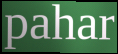
pahar